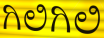
ಗಿಲಿಗಿಲಿ